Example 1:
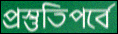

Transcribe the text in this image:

প্রস্তুতিপর্বে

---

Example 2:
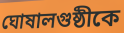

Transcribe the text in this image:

ঘোষালগুষ্ঠীকে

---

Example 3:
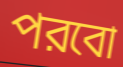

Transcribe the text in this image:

পরবো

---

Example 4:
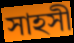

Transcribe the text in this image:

সাহসী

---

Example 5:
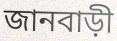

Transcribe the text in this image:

জানবাড়ী